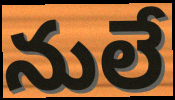
నులే